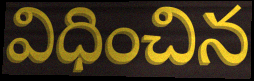
విధించిన